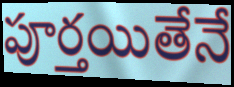
పూర్తయితేనే